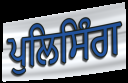
ਪੁਲਿਸਿੰਗ